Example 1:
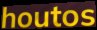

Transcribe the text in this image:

houtos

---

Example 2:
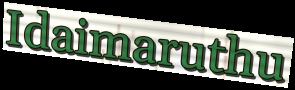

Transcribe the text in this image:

Idaimaruthu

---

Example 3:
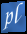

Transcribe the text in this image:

pl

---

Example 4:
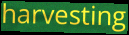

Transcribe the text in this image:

harvesting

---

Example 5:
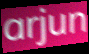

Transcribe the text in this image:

arjun